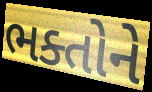
ભક્તોને